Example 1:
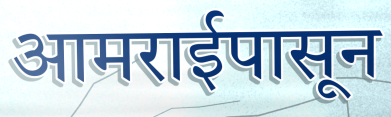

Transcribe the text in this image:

आमराईपासून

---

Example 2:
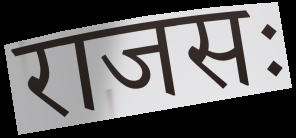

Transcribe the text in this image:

राजसः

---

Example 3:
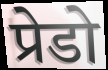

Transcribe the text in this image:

प्रेडो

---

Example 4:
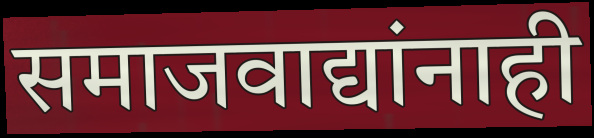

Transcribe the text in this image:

समाजवाद्यांनाही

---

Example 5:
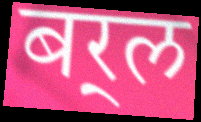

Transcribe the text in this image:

बर्ल